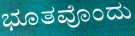
ಭೂತವೊಂದು